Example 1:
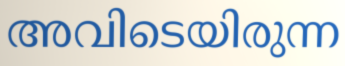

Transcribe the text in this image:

അവിടെയിരുന്ന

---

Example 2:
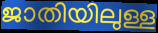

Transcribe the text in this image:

ജാതിയിലുള്ള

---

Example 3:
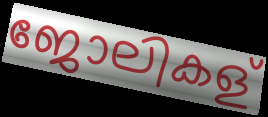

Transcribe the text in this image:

ജോലികള്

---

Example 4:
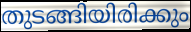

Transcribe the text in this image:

തുടങ്ങിയിരിക്കും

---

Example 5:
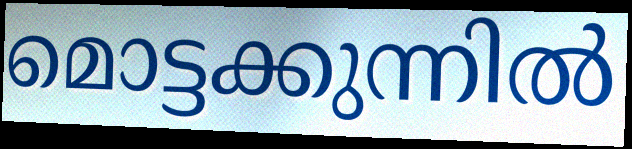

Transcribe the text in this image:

മൊട്ടക്കുന്നിൽ